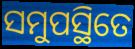
ସମୁପସ୍ଥିତେ